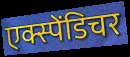
एक्स्पेंडिचर